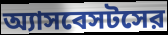
অ্যাসবেসটসের